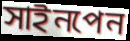
সাইনপেন